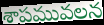
శాపమువలన